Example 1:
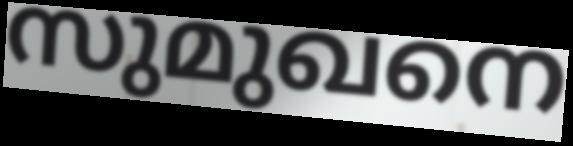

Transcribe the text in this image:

സുമുഖനെ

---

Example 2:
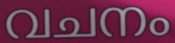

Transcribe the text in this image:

വചനം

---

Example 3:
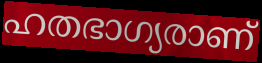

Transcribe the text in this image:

ഹതഭാഗ്യരാണ്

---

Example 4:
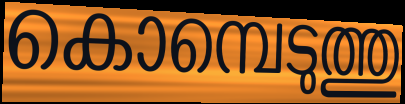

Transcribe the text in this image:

കൊമ്പെടുത്തു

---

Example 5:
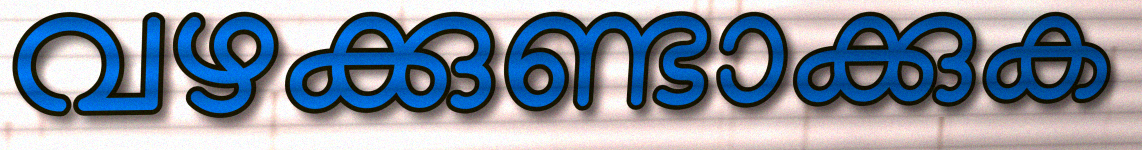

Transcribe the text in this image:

വഴക്കുണ്ടാക്കുക